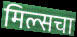
मिल्सचा